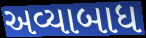
અવ્યાબાધ